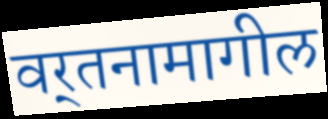
वर्तनामागील